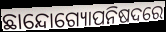
ଛାନ୍ଦୋଗ୍ୟୋପନିଷଦରେ